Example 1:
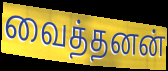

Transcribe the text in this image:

வைத்தனன்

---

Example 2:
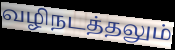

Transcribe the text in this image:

வழிநடத்தலும்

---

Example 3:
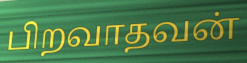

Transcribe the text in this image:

பிறவாதவன்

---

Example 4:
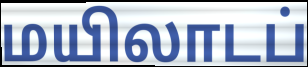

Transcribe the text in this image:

மயிலாடப்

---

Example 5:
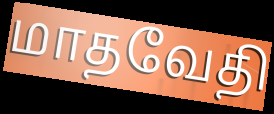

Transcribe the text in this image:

மாதவேதி